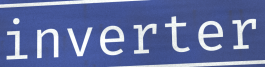
inverter